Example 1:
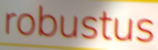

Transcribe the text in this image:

robustus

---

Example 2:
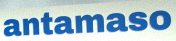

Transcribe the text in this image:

antamaso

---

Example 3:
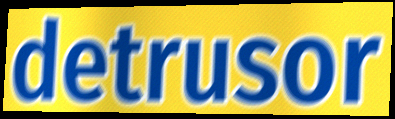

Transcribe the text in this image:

detrusor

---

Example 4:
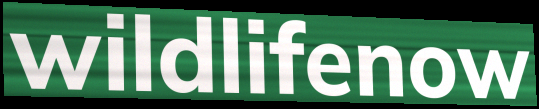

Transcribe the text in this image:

wildlifenow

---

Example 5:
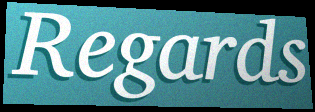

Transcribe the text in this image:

Regards